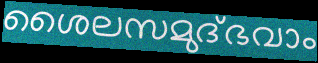
ശൈലസമുദ്ഭവാം